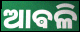
ଆଵଳି